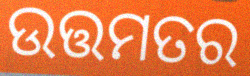
ଉତ୍ତମତର